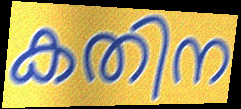
കതിന